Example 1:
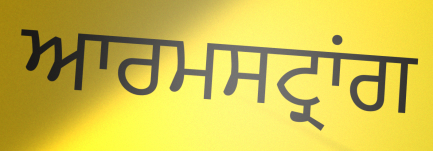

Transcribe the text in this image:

ਆਰਮਸਟ੍ਰਾਂਗ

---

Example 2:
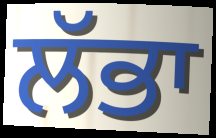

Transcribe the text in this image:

ਲੱਭਾ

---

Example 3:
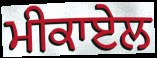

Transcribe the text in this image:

ਮੀਕਾਏਲ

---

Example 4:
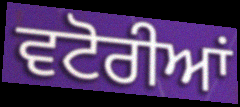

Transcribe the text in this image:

ਵਟੋਰੀਆਂ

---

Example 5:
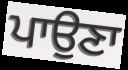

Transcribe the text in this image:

ਪਾਉਣਾ